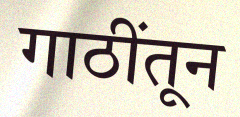
गाठींतून